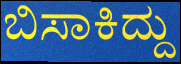
ಬಿಸಾಕಿದ್ದು